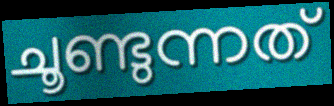
ചൂണ്ടുന്നത്